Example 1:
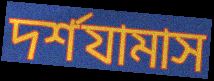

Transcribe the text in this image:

দর্শযামাস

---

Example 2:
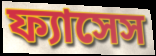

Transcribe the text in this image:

ফ্যাসেস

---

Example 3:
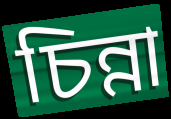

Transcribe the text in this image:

চিন্না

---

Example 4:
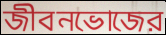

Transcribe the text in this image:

জীবনভোজের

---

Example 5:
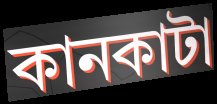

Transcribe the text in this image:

কানকাটা